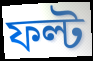
ফল্ট